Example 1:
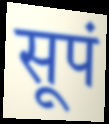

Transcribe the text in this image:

सूपं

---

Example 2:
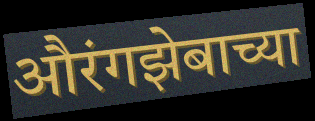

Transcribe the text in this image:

औरंगझेबाच्या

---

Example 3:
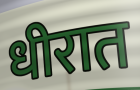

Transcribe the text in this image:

धीरात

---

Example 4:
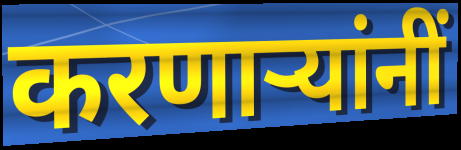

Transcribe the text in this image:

करणार्‍यांनीं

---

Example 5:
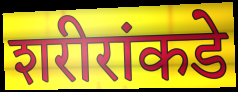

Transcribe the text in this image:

शरीरांकडे